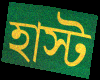
হাস্ট